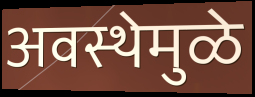
अवस्थेमुळे